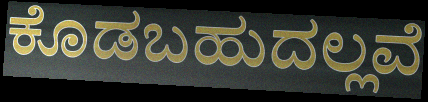
ಕೊಡಬಹುದಲ್ಲವೆ